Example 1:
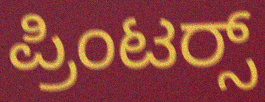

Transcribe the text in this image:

ಪ್ರಿಂಟರ‍್ಸ್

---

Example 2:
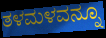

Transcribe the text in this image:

ತಳಮಳವನ್ನೂ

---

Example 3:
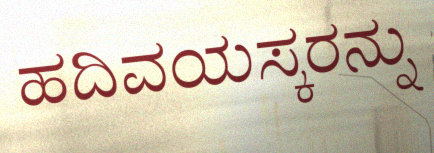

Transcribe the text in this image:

ಹದಿವಯಸ್ಕರನ್ನು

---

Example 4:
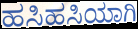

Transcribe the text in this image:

ಹಸಿಹಸಿಯಾಗಿ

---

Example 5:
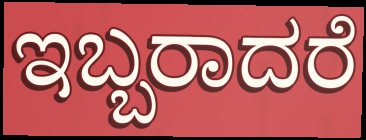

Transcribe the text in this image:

ಇಬ್ಬರಾದರೆ